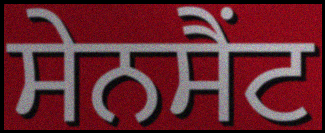
ਸੇਨਸੈਂਟ